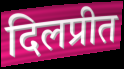
दिलप्रीत